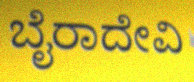
ಬೈರಾದೇವಿ